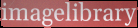
imagelibrary